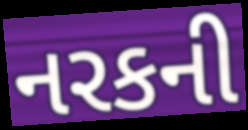
નરકની